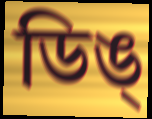
ডিঙ্